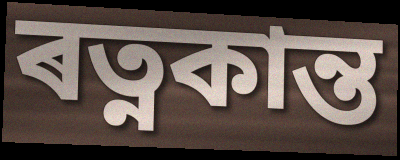
ৰত্নকান্ত